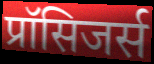
प्रॉसिजर्स